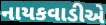
નાયકવાડીએ